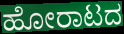
ಹೋರಾಟದ